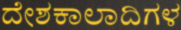
ದೇಶಕಾಲಾದಿಗಳ